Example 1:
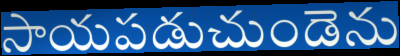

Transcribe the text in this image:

సాయపడుచుండెను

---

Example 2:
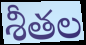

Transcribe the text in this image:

శీతల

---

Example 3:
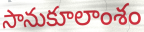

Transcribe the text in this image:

సానుకూలాంశం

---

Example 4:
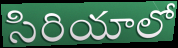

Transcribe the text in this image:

సిరియాలో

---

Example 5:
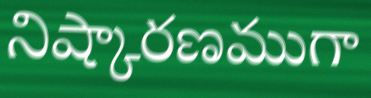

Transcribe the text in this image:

నిష్కారణముగా